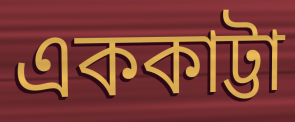
এককাট্টা